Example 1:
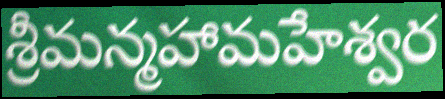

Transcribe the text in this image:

శ్రీమన్మహామహేశ్వర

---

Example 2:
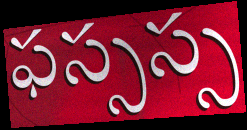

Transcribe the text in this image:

ఫస్సస్స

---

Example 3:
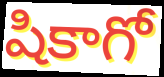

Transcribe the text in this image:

షికాగో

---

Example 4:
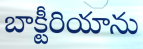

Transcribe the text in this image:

బాక్టీరియాను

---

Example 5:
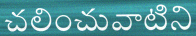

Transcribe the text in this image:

చలించువాటిని